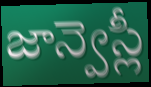
జాన్వెస్లీ